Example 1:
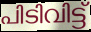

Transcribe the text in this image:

പിടിവിട്ട്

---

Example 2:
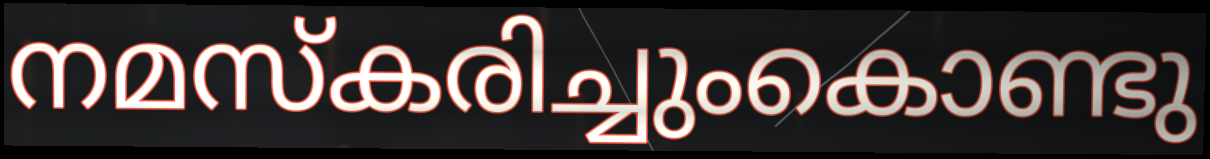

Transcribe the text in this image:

നമസ്കരിച്ചുംകൊണ്ടു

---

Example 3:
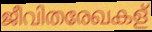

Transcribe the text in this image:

ജീവിതരേഖകള്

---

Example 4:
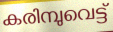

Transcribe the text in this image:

കരിമ്പുവെട്ട്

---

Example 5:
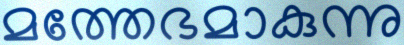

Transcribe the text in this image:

മത്തേഭമാകുന്നു